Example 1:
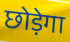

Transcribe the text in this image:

छोड़ेगा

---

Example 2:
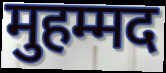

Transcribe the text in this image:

मुहम्‍मद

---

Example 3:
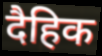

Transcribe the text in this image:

दैहिक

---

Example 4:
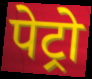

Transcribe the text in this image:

पेट्रो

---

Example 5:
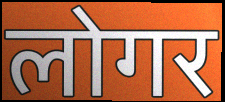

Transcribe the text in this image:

लोगर